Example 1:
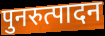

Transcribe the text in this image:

पुनरुत्पादन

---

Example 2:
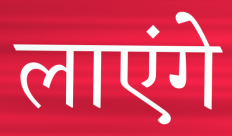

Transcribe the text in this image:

लाएंगे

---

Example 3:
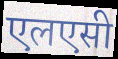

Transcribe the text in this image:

एलएसी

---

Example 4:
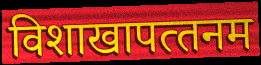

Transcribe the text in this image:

विशाखापत्‍तनम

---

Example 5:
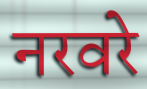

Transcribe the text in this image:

नरवरे